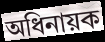
অধিনায়ক